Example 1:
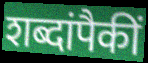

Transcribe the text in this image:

शब्दांपैकीं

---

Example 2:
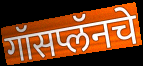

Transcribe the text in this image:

गॉसप्लॅनचे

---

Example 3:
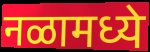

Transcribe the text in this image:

नळामध्ये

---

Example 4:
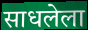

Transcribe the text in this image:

साधलेला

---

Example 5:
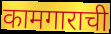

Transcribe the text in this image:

कामगाराची